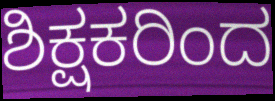
ಶಿಕ್ಷಕರಿಂದ